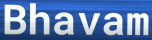
Bhavam